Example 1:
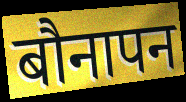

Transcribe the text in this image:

बौनापन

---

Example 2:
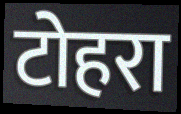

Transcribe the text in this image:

टोहरा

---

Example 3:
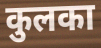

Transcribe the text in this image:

कुलका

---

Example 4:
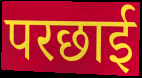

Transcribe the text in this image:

परछाई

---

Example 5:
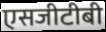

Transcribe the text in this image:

एसजीटीबी